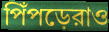
পিঁপড়েরাও